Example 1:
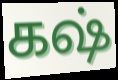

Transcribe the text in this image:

கஷ்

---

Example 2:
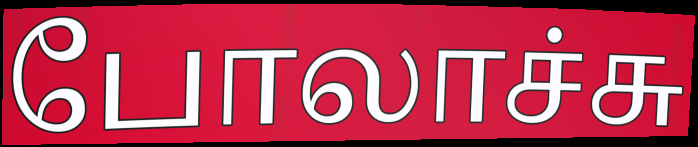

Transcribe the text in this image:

போலாச்சு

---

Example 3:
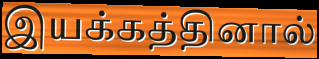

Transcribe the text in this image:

இயக்கத்தினால்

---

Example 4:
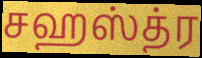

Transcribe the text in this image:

சஹஸ்த்ர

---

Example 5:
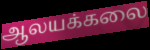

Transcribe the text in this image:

ஆலயக்கலை